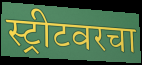
स्ट्रीटवरचा